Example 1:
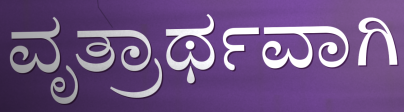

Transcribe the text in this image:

ವೃತ್ರಾರ್ಥವಾಗಿ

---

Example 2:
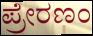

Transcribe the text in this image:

ಪ್ರೇರಣಂ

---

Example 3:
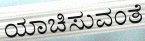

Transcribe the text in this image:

ಯಾಚಿಸುವಂತೆ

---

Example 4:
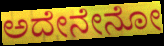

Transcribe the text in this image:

ಅದೇನೇನೋ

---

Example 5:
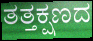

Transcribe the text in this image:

ತತ್ತಕ್ಷಣದ